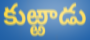
కుఱ్ఱాడు